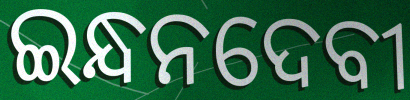
ଇନ୍ଧନଦେବୀ